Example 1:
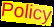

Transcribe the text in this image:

Policy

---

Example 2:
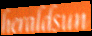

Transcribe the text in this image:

heraldsun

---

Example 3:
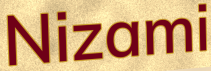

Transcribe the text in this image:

Nizami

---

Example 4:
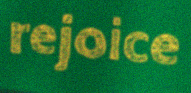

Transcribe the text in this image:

rejoice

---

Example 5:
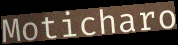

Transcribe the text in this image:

Moticharo